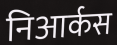
निआर्कस